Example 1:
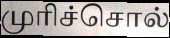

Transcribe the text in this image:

முரிச்சொல்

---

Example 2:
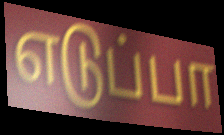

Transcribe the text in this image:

எடுப்பா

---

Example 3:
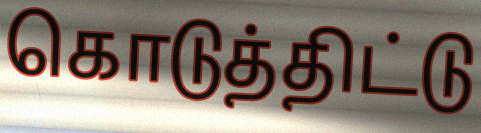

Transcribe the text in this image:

கொடுத்திட்டு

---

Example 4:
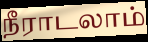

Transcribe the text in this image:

நீராடலாம்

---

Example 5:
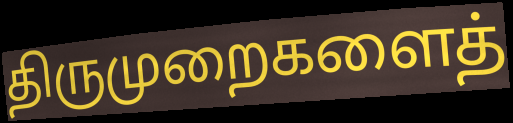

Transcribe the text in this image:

திருமுறைகளைத்